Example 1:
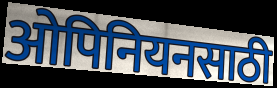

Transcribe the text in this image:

ओपिनियनसाठी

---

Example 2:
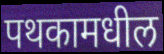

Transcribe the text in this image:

पथकामधील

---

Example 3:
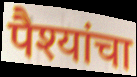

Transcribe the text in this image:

पैश्यांचा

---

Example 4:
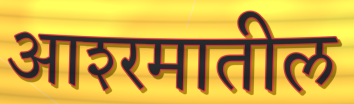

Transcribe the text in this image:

आश्रमातील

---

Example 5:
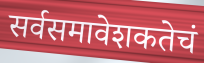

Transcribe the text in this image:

सर्वसमावेशकतेचं